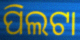
ପିଲଟା